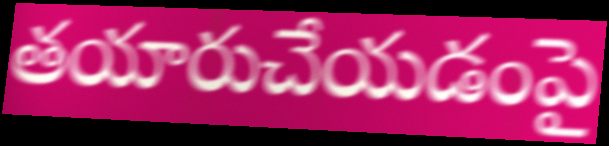
తయారుచేయడంపై